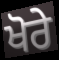
ਖੋਰੇ